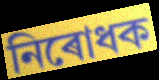
নিৰোধক